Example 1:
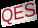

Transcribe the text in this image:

QES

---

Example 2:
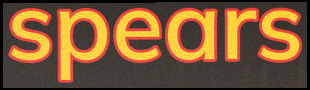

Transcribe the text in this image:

spears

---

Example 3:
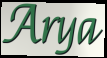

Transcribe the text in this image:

Arya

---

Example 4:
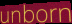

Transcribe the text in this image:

unborn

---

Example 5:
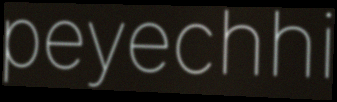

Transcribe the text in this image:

peyechhi